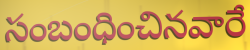
సంబంధించినవారే